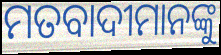
ମତବାଦୀମାନଙ୍କୁ